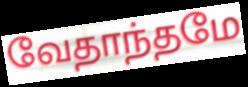
வேதாந்தமே